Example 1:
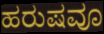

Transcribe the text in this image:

ಹರುಷವೂ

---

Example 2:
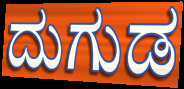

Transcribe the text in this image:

ದುಗುಡ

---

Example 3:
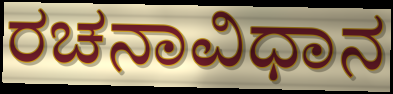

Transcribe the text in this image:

ರಚನಾವಿಧಾನ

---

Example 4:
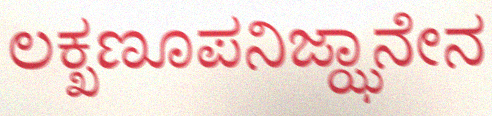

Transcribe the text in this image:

ಲಕ್ಖಣೂಪನಿಜ್ಝಾನೇನ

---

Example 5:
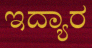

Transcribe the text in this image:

ಇದ್ಯಾರ